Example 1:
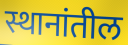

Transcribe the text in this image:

स्थानांतील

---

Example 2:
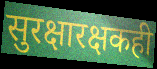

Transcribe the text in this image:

सुरक्षारक्षकही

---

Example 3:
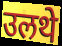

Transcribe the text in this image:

उलथे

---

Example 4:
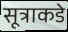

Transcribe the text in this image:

सूत्राकडे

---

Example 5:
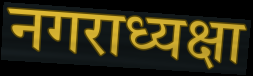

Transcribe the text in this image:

नगराध्यक्षा